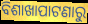
ବିଶାଖାପାଟଣାରୁ